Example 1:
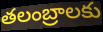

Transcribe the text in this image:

తలంబ్రాలకు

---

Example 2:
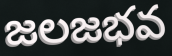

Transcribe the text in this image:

జలజభవ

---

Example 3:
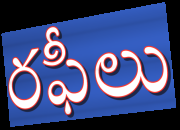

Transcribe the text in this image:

రఫీలు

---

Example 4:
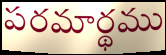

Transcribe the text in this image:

పరమార్థము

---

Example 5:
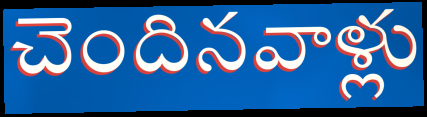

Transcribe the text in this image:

చెందినవాళ్లు